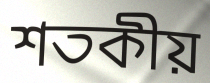
শতকীয়